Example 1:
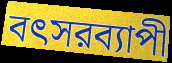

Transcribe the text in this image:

বৎসরব্যাপী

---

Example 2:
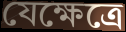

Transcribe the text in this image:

যেক্ষেত্রে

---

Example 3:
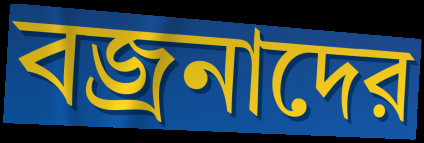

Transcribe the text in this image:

বজ্রনাদের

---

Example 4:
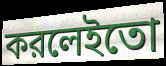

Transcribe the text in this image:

করলেইতো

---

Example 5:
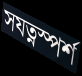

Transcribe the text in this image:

সযত্নস্পর্শ